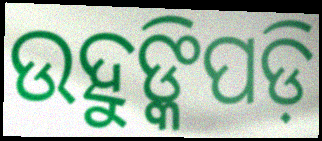
ଉହୁଙ୍କିପଡ଼ି